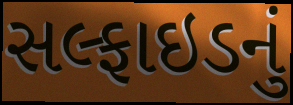
સલ્ફાઇડનું